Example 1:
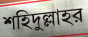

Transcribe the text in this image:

শহিদুল্লাহর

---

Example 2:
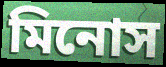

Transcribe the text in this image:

মিনোস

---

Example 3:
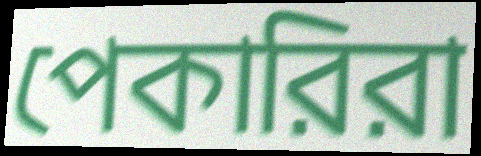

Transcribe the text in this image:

পেকারিরা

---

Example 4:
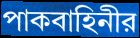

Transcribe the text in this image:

পাকবাহিনীর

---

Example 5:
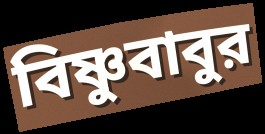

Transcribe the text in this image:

বিষ্ণুবাবুর